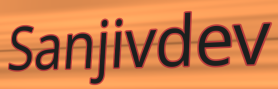
Sanjivdev